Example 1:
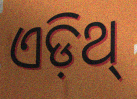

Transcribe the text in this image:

ଏଡ଼ିଥ୍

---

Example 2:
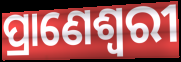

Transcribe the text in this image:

ପ୍ରାଣେଶ୍ୱରୀ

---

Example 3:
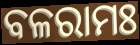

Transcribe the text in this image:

ବଳରାମଃ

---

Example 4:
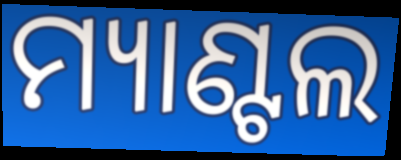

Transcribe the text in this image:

ମ୍ୟାଣ୍ଟଲ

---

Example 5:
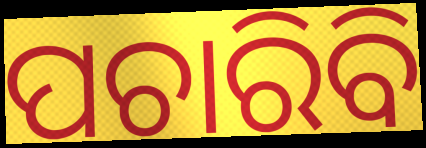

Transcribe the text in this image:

ପଚାରିବି